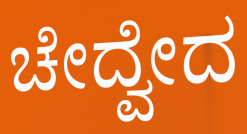
ಚೇದ್ವೇದ